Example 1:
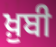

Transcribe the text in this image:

ਖ਼ੁਬੀ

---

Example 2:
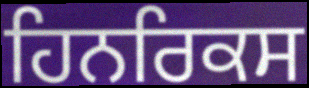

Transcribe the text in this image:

ਹਿਨਰਿਕਸ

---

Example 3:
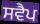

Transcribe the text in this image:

ਸਵੈਪ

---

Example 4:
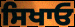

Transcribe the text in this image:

ਸਿਖਾਓ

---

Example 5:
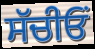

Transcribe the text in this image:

ਸੱਚੀਓਂ